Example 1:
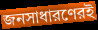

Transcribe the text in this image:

জনসাধারণেরই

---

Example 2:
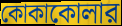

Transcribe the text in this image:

কোকাকোলার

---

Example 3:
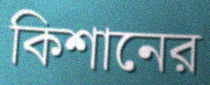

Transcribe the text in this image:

কিশানের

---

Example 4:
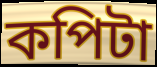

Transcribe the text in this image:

কপিটা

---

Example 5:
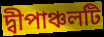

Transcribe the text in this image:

দ্বীপাঞ্চলটি